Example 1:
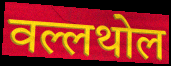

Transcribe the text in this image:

वल्लथोल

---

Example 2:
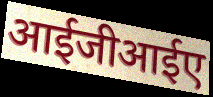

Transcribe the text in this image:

आईजीआईए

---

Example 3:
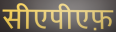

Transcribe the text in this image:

सीएपीएफ़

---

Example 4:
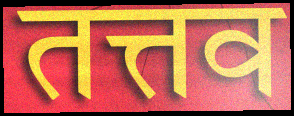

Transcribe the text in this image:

तत्तव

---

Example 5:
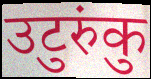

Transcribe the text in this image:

उटुरुंकु